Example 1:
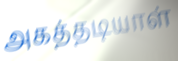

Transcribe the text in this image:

அகத்தடியாள்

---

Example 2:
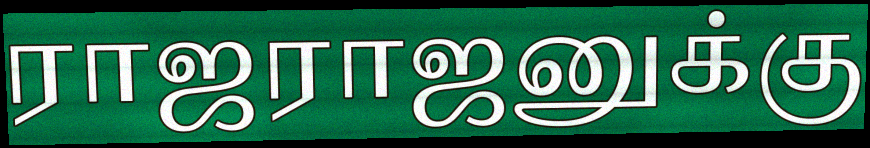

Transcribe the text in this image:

ராஜராஜனுக்கு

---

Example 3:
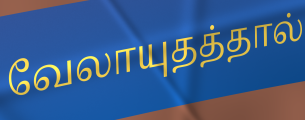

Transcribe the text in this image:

வேலாயுதத்தால்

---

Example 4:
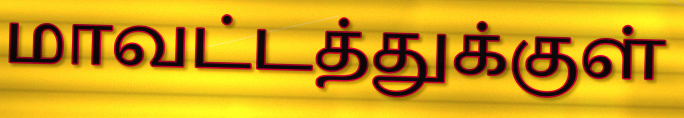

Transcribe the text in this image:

மாவட்டத்துக்குள்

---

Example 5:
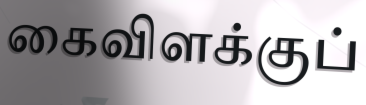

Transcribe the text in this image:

கைவிளக்குப்